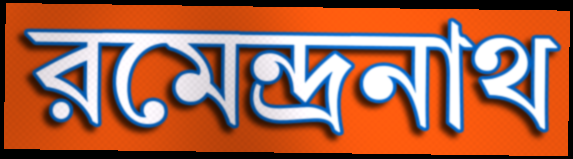
রমেন্দ্রনাথ